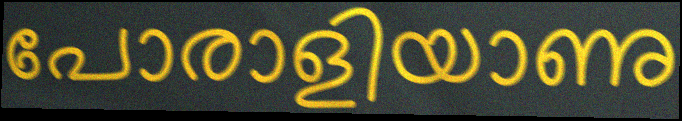
പോരാളിയാണു